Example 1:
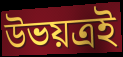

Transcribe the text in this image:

উভয়ত্রই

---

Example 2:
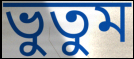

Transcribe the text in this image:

ভুতুম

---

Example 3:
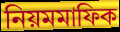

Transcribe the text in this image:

নিয়মমাফিক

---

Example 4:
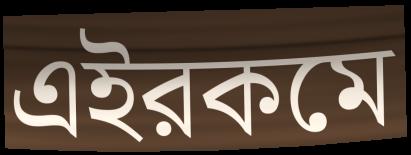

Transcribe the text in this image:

এইরকমে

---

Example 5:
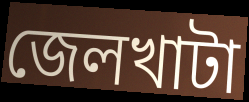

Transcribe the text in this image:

জেলখাটা